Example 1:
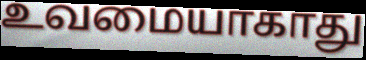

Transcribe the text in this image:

உவமையாகாது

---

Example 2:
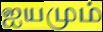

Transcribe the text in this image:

ஐயமும்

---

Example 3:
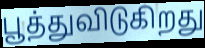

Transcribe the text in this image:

பூத்துவிடுகிறது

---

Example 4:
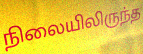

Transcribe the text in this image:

நிலையிலிருந்த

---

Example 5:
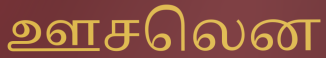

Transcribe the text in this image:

ஊசலென